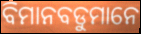
ବିମାନବଡୁମାନେ